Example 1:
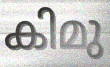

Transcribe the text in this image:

കിമു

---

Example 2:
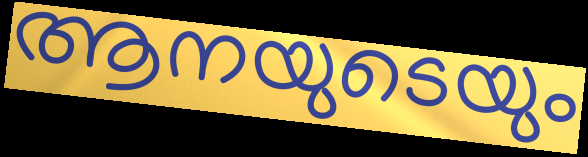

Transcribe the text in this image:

ആനയുടെയും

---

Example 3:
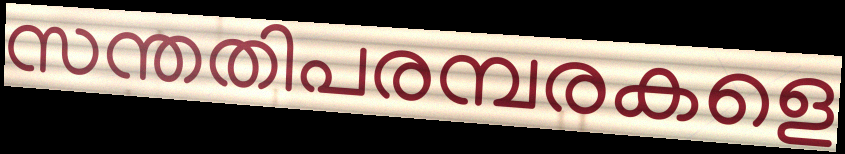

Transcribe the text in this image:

സന്തതിപരമ്പരകളെ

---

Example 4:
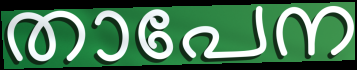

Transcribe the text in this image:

താപേന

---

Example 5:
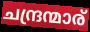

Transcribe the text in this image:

ചന്ദ്രന്മാര്